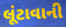
લૂંટાવાની